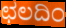
ಛಲದಿಂ